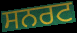
ਸਨਰਟ